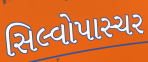
સિલ્વોપાસ્ચર